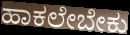
ಹಾಕಲೇಬೇಕು